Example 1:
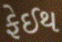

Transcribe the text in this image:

ફેઈથ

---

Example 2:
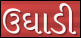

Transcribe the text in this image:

ઉઘાડી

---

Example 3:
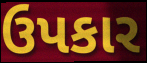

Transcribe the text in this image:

ઉપકાર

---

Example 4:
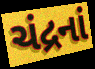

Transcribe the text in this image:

ચંદ્રનાં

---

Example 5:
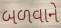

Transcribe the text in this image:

બળવાને